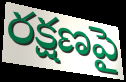
రక్షణపై